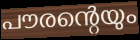
പൗരന്റെയും